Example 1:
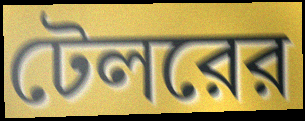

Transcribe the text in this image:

টেলরের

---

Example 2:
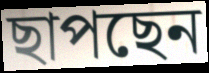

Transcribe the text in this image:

ছাপছেন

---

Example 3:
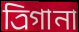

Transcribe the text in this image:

ত্রিগানা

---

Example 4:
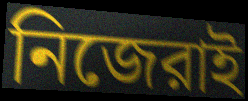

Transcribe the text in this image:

নিজেরাই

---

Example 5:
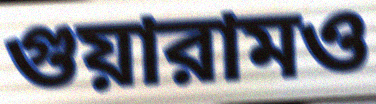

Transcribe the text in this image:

গুয়ারামও